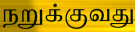
நறுக்குவது